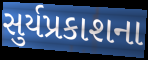
સુર્યપ્રકાશના